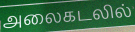
அலைகடலில்